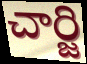
చార్జి